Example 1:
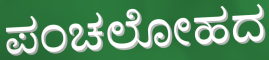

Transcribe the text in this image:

ಪಂಚಲೋಹದ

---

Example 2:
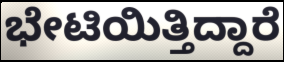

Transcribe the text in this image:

ಭೇಟಿಯಿತ್ತಿದ್ದಾರೆ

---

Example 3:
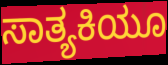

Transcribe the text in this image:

ಸಾತ್ಯಕಿಯೂ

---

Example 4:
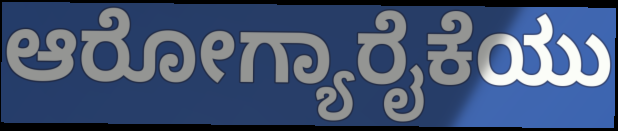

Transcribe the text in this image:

ಆರೋಗ್ಯಾರೈಕೆಯು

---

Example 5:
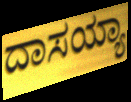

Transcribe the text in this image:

ದಾಸಯ್ಯಾ